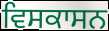
ਵਿਸਕਾਸਨ